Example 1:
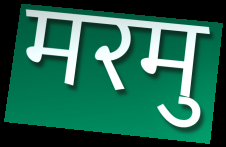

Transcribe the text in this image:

मरमु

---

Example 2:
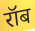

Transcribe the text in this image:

रॉब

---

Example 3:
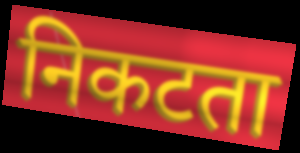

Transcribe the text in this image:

निकटता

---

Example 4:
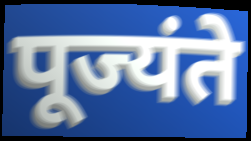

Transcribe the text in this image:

पूज्यंते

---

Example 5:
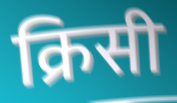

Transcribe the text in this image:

क्रिसी